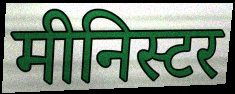
मीनिस्टर